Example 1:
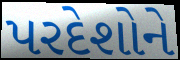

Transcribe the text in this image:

પરદેશોને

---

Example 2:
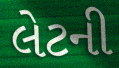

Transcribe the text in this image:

લેટની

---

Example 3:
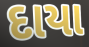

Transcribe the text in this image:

દાયા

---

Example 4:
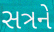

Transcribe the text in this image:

સત્રને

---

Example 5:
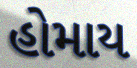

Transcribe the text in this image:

હોમાય